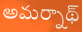
అమర్నాథ్